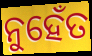
ନୁହେଁତ